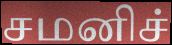
சமனிச்